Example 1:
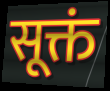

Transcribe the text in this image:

सूक्तं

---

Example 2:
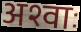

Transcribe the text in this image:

अश्वाः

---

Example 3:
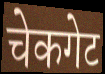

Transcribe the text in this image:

चेकगेट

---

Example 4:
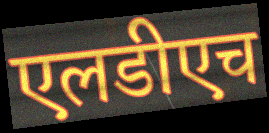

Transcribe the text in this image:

एलडीएच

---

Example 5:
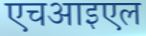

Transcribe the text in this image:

एचआइएल